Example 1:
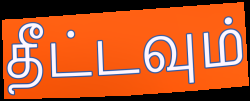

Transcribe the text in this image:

தீட்டவும்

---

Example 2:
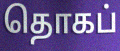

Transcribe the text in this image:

தொகப்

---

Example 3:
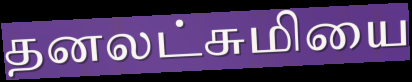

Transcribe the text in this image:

தனலட்சுமியை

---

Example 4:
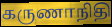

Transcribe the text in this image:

கருணாநிதி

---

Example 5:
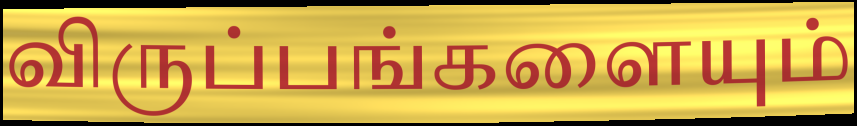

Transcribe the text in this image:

விருப்பங்களையும்